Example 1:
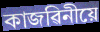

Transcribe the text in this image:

কাজৱিনীয়ে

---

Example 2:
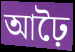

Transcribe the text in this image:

আঢ়ৈ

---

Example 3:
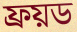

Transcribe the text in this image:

ফ্ৰয়ড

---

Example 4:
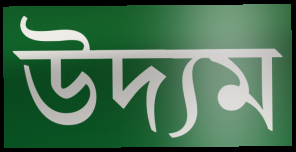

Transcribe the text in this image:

উদ্যম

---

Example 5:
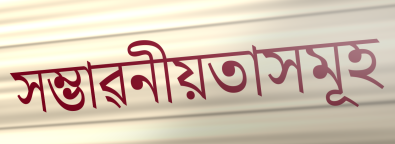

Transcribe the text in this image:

সম্ভাৱনীয়তাসমূহ